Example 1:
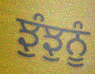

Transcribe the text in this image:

ਝੁੰਝੁਨੂੰ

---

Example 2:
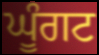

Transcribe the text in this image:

ਘੂੰਗਟ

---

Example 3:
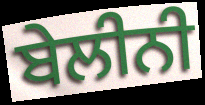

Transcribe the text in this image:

ਬੇਲੀਨੀ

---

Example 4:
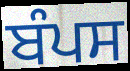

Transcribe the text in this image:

ਬੰਪਸ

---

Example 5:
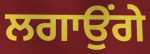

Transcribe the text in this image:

ਲਗਾਉਂਗੇ